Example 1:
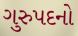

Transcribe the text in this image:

ગુરુપદનો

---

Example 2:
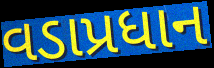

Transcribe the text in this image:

વડાપ્રધાન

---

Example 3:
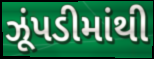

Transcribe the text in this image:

ઝૂંપડીમાંથી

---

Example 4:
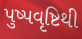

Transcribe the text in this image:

પુષ્પવૃષ્ટિથી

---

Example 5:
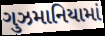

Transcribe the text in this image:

ગુઝમાનિયામાં